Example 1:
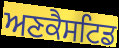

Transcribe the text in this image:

ਅਣਕੈਸਟਿਡ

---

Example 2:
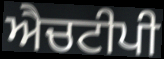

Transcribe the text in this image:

ਐਚਟੀਪੀ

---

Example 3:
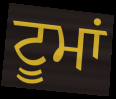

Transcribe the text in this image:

ਟੂਮਾਂ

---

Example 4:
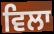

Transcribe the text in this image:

ਵਿਲਾ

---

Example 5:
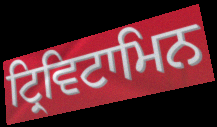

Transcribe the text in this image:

ਟ੍ਰਿਵਿਟਾਮਿਨ